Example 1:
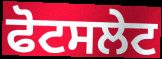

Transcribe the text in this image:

ਫੋਟਸਲੇਟ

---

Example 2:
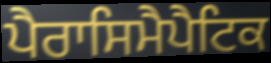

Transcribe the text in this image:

ਪੈਰਾਸਿਮੈਪੈਟਿਕ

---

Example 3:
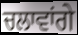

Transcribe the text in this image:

ਚਲਾਵਾਂਗੇ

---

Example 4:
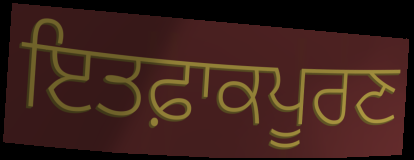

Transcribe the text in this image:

ਇਤਫ਼ਾਕਪੂਰਣ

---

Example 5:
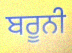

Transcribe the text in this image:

ਬਰੂਨੀ